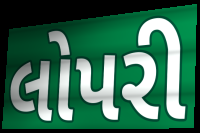
લોપરી